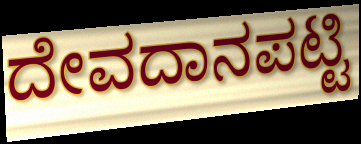
ದೇವದಾನಪಟ್ಟಿ